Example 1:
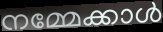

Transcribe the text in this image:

നമ്മേക്കാൾ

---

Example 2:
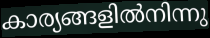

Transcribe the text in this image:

കാര്യങ്ങളിൽനിന്നു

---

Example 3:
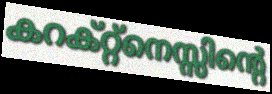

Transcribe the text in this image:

കറക്റ്റ്നെസ്സിന്റെ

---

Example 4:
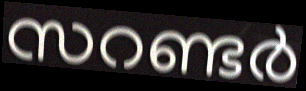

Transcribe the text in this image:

സറണ്ടർ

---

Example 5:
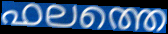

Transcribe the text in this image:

ഫലത്തെ